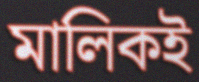
মালিকই